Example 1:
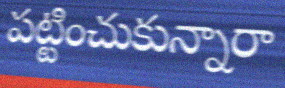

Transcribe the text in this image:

పట్టించుకున్నారా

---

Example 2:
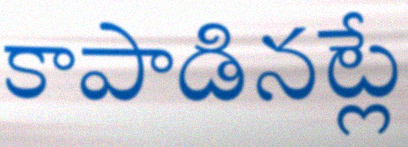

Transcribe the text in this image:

కాపాడినట్లే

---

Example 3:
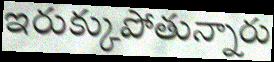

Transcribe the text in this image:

ఇరుక్కుపోతున్నారు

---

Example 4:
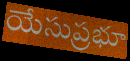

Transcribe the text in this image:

యేసుప్రభూ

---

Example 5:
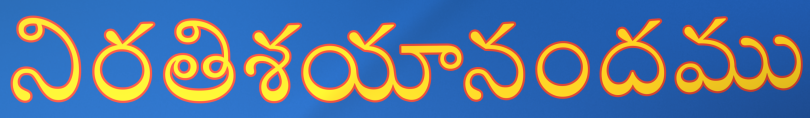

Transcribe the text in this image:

నిరతిశయానందము